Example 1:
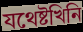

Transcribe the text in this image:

যথেষ্টখিনি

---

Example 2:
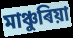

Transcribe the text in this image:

মাঞ্চুৰিয়া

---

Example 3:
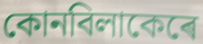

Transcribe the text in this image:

কোনবিলাকেৰে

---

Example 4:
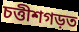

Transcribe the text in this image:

চত্তীশগড়ত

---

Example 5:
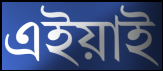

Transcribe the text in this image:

এইয়াই